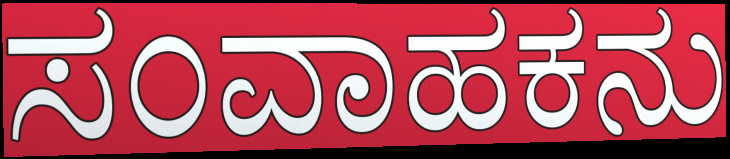
ಸಂವಾಹಕನು